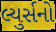
લ્યુર્સનો